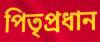
পিতৃপ্রধান